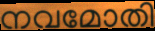
നവമോതി